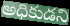
అధికుడని